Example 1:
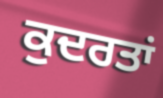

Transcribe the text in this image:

ਕੁਦਰਤਾਂ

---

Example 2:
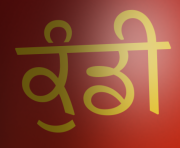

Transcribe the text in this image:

ਕੁੰਡੀ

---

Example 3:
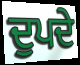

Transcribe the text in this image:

ਦੁਪਦੇ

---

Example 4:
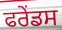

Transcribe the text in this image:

ਫਰੇਂਡਸ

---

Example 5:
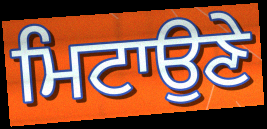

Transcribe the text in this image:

ਮਿਟਾਉਣੇ